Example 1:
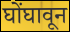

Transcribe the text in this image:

घोंघावून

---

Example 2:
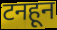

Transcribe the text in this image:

टनहून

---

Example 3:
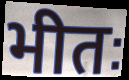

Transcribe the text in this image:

भीतः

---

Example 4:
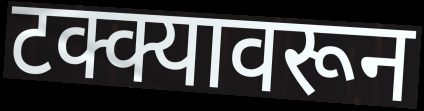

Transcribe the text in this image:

टक्क्यावरून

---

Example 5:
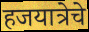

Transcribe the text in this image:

हजयात्रेचे